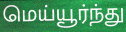
மெய்யூர்ந்து